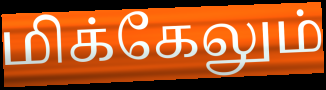
மிக்கேலும்